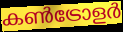
കൺട്രോളർ